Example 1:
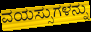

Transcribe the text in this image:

ವಯಸ್ಸುಗಳನ್ನು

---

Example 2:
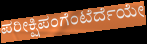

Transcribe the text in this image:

ಪರೀಕ್ಷಿಪಂಗೆಂಟೆರ್ದೆಯೇ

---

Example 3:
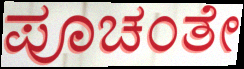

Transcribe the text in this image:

ಪೂಚಂತೇ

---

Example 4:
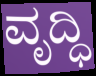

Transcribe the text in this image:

ವೃದ್ಧಿ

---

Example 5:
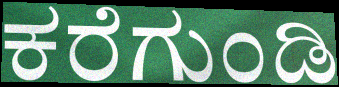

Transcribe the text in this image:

ಕರೆಗುಂಡಿ